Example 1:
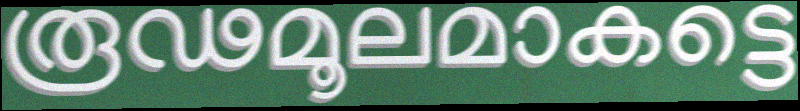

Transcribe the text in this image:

രൂഢമൂലമാകട്ടെ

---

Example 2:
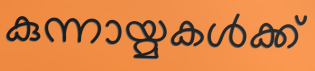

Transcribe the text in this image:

കുന്നായ്മകൾക്ക്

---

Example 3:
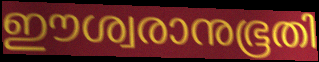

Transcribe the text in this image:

ഈശ്വരാനുഭൂതി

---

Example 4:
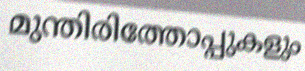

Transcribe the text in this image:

മുന്തിരിത്തോപ്പുകളും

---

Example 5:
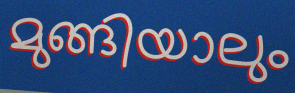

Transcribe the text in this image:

മുങ്ങിയാലും